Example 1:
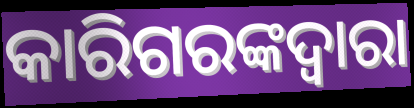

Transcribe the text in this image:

କାରିଗରଙ୍କଦ୍ୱାରା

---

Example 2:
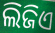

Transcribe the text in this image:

ଲିଜିଏ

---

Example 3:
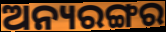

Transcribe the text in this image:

ଅନ୍ୟରଙ୍ଗର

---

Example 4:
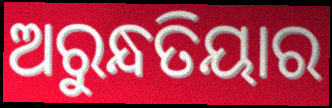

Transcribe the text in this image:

ଅରୁନ୍ଧତିୟାର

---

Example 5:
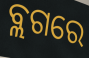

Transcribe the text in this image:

ବ୍ଲଗରେ